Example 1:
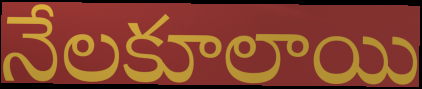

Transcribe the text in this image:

నేలకూలాయి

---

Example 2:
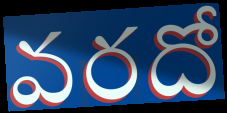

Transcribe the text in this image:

వరదో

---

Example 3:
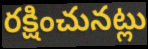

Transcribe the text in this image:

రక్షించునట్లు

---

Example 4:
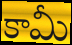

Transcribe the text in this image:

కామీ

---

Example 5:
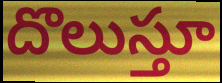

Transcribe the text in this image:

దొలుస్తూ